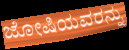
ಜೋಷಿಯವರನ್ನು